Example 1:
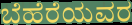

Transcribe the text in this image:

ಬೆಹೆರೆಯವರ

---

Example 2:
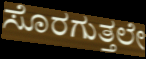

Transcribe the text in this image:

ಸೊರಗುತ್ತಲೇ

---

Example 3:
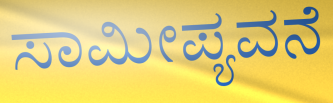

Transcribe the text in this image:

ಸಾಮೀಪ್ಯವನೆ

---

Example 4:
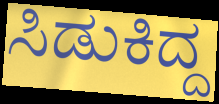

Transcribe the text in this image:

ಸಿಡುಕಿದ್ದ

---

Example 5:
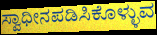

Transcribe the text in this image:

ಸ್ವಾಧೀನಪಡಿಸಿಕೊಳ್ಳುವ